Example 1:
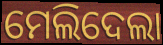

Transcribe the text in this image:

ମେଲିଦେଲା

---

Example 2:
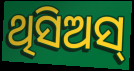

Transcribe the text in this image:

ଥିସିଅସ୍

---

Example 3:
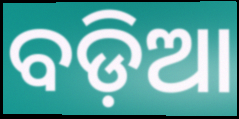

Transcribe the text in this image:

ବଡ଼ିଆ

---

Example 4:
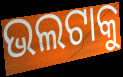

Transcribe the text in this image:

ଭଲଟାକୁ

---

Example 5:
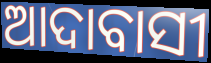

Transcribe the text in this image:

ଆଦାବାସୀ